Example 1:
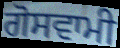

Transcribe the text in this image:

ਗੋਸਵਾਮੀ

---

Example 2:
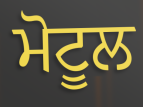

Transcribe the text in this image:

ਮੋਟੂਲ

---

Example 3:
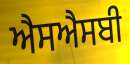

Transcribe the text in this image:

ਐਸਐਸਬੀ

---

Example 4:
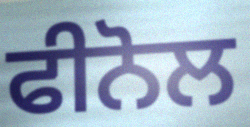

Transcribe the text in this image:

ਫੀਨੋਲ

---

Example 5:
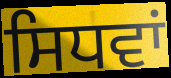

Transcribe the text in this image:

ਸਿਧਵਾਂ